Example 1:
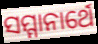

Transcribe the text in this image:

ସମ୍ମାନାର୍ଥେ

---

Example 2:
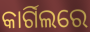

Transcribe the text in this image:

କାର୍ଗିଲରେ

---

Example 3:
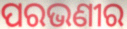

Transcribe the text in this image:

ପରଭଣୀର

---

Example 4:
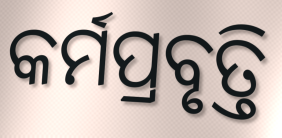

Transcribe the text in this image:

କର୍ମପ୍ରବୃତ୍ତି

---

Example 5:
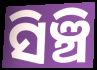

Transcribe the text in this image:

ସିଞ୍ଚି